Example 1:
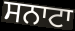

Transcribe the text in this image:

ਸਨਾਟਾ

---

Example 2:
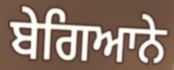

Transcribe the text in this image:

ਬੇਗਿਆਨੇ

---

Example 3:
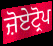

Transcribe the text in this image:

ਜ਼ੋਏਟ੍ਰੋਪ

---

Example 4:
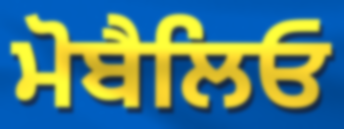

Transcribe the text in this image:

ਮੋਬੈਲਿਓ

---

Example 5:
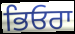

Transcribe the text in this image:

ਭਿਓਰਾ